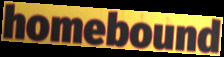
homebound